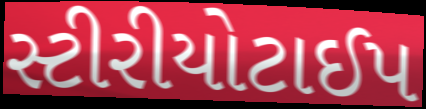
સ્ટીરીયોટાઈપ